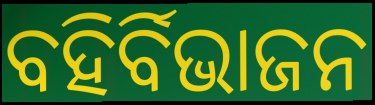
ବହିର୍ବିଭାଜନ